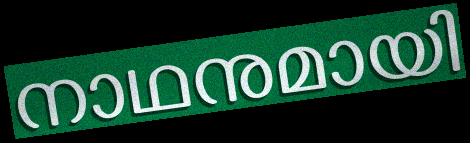
നാഥനുമായി